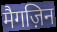
मैगज़िन